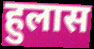
हुलास